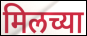
मिलच्या